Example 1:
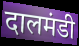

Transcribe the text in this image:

दालमंडी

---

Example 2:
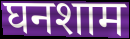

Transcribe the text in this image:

घनशाम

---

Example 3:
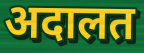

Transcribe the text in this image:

अदालत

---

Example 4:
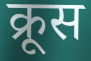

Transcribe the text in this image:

क्रूस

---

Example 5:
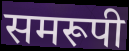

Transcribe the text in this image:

समरूपी